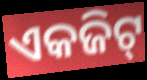
ଏକଜିଟ୍